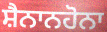
ਸ਼ੈਨਾਨਹੋਨਾ